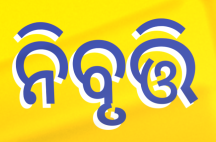
ନିବୃତ୍ତି